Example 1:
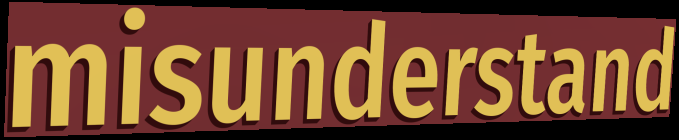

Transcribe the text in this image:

misunderstand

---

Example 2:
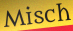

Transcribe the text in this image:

Misch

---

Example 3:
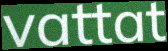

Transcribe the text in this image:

vattat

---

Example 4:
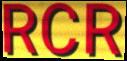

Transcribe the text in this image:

RCR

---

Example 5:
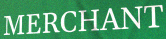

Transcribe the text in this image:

MERCHANT